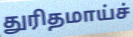
துரிதமாய்ச்